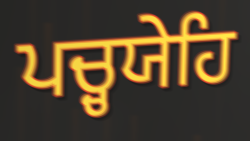
ਪਚ੍ਚਯੇਹਿ